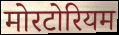
मोरटोरियम